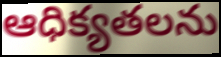
ఆధిక్యతలను